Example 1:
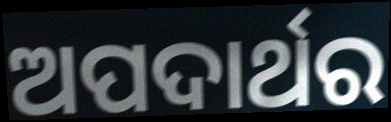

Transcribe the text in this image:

ଅପଦାର୍ଥର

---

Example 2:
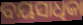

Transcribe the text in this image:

ବୟସାଧିକା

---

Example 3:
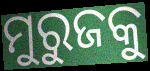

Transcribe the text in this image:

ମୁରୁଜକୁ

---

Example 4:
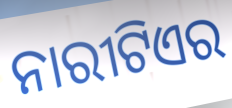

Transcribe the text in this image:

ନାରୀଟିଏର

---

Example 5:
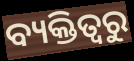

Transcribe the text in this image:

ବ୍ୟକ୍ତିତ୍ଵରୁ